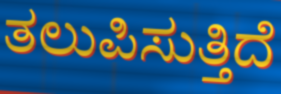
ತಲುಪಿಸುತ್ತಿದೆ